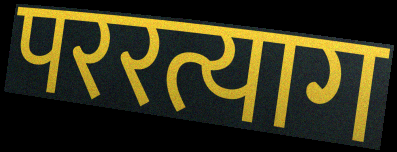
पररत्याग